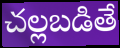
చల్లబడితే